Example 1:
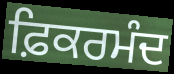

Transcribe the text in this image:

ਫ਼ਿਕਰਮੰਦ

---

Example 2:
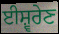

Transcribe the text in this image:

ਈਸ਼੍ਵਰੇਣ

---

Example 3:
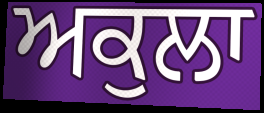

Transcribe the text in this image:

ਅਕੁਲਾ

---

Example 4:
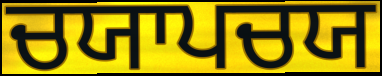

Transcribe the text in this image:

ਚਯਾਪਚਯ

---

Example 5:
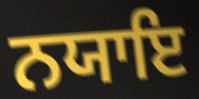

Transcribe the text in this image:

ਨਯਾਇ